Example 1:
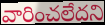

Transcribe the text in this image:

వారించలేదని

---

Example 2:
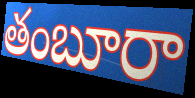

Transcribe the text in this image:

తంబూరా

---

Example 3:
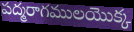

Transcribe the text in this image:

పద్మరాగములయొక్క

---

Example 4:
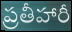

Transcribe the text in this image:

ప్రతీహారీ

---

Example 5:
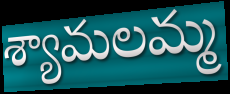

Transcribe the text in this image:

శ్యామలమ్మ